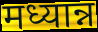
मध्यान्न